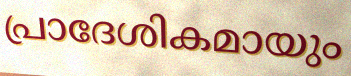
പ്രാദേശികമായും